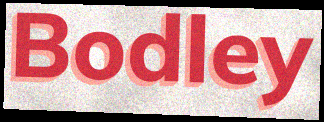
Bodley